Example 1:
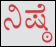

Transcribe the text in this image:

ನಿಷ್ಠೆ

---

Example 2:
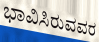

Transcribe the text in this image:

ಭಾವಿಸಿರುವವರ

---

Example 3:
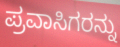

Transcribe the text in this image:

ಪ್ರವಾಸಿಗರನ್ನು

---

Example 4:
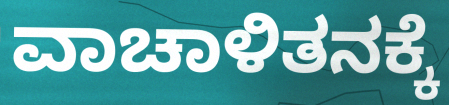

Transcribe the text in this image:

ವಾಚಾಳಿತನಕ್ಕೆ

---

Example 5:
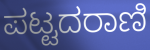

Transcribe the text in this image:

ಪಟ್ಟದರಾಣಿ